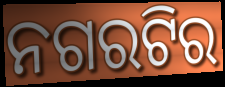
ନଗରଟିର